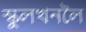
স্কুলখনলৈ